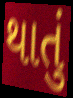
થાતું